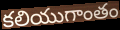
కలియుగాంతం